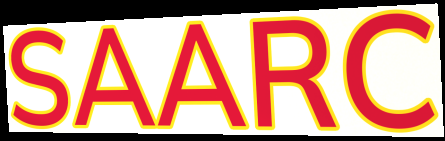
SAARC